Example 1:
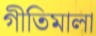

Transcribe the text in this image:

গীতিমালা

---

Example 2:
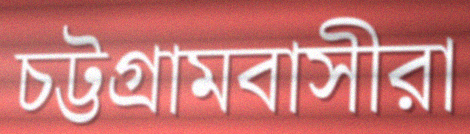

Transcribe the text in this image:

চট্টগ্রামবাসীরা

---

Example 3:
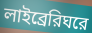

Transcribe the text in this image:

লাইব্রেরিঘরে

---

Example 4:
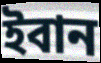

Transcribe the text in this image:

ইবান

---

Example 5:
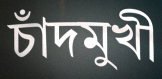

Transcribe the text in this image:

চাঁদমুখী